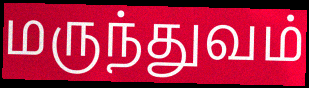
மருந்துவம்